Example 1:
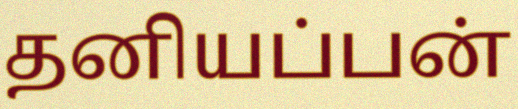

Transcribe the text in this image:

தனியப்பன்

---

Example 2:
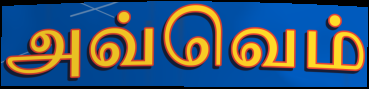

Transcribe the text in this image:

அவ்வெம்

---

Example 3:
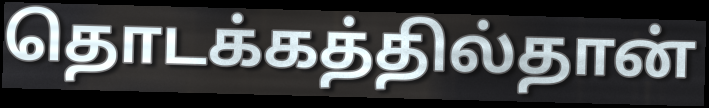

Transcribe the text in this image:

தொடக்கத்தில்தான்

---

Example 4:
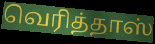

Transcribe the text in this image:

வெரித்தாஸ்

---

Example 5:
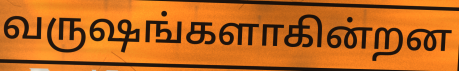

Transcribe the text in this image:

வருஷங்களாகின்றன